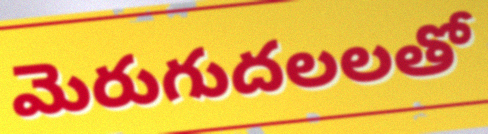
మెరుగుదలలతో